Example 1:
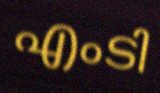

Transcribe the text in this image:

എംടി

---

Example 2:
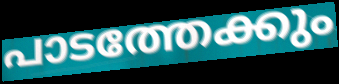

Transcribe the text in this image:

പാടത്തേക്കും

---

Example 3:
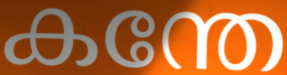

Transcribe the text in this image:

കന്തേ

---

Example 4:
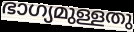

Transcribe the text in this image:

ഭാഗ്യമുള്ളതു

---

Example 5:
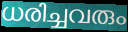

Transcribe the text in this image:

ധരിച്ചവരും